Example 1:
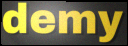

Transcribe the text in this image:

demy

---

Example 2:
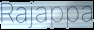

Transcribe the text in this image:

Rajappa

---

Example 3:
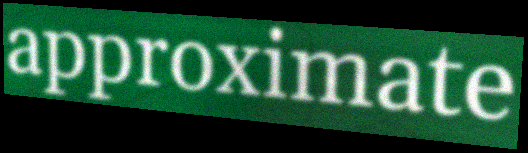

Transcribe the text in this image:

approximate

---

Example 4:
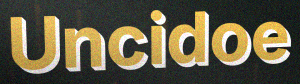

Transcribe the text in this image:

Uncidoe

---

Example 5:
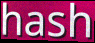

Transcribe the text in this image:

hash